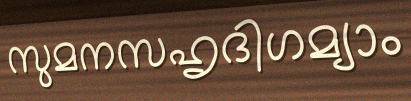
സുമനസഹൃദിഗമ്യാം